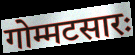
गोम्मटसारः